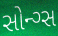
સોન્ગ્સ